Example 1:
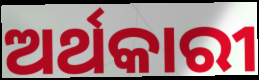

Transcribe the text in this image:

ଅର୍ଥକାରୀ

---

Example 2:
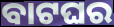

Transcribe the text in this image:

ବାଟଘର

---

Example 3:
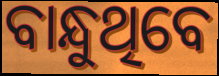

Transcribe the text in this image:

ବାନ୍ଧୁଥିବେ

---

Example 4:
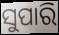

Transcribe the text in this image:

ସୁପାରି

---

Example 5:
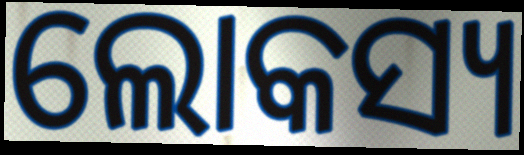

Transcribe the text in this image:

ଲୋକସ୍ୟ